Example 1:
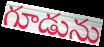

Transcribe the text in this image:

గూడును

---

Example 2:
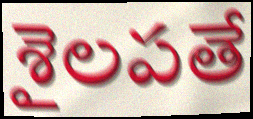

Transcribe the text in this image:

శైలపతే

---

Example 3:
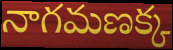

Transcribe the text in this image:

నాగమణక్క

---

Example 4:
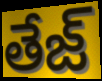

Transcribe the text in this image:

తేజ్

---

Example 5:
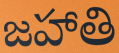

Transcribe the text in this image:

జహాతి